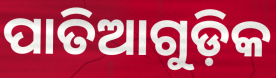
ପାତିଆଗୁଡ଼ିକ